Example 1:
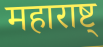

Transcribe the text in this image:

महाराष्ट्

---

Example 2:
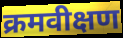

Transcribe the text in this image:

क्रमवीक्षण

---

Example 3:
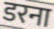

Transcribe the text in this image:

डरना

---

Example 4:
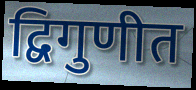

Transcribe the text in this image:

द्विगुणीत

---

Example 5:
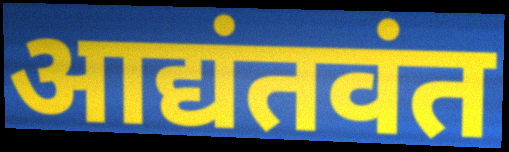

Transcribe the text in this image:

आद्यंतवंत